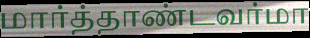
மார்த்தாண்டவர்மா